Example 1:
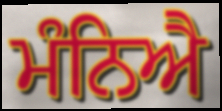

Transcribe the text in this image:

ਮੰਨਿਐ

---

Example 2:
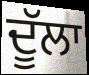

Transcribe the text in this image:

ਦੂੱਲਾ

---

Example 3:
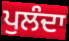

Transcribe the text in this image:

ਪੁਲੰਦਾ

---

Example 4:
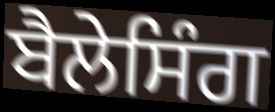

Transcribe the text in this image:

ਬੈਲੇਸਿੰਗ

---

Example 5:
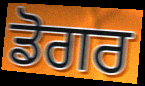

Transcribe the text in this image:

ਡੋਗਰ